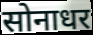
सोनाधर